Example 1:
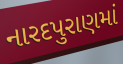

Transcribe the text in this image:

નારદપુરાણમાં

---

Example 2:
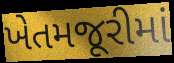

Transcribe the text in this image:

ખેતમજૂરીમાં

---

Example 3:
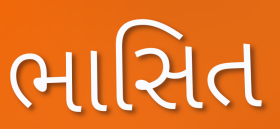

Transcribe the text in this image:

ભાસિત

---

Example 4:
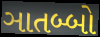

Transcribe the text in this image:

ઞાતબ્બો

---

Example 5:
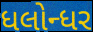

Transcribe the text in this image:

ધલોન્ધર